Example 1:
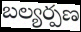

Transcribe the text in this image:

బల్యర్పణ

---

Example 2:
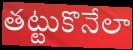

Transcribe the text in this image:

తట్టుకొనేలా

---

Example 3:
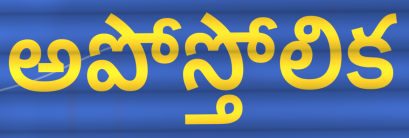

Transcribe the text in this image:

అపోస్తోలిక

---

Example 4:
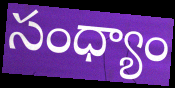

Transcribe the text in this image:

సంధ్యాం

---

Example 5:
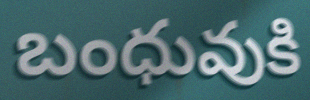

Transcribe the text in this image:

బంధువుకి